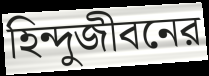
হিন্দুজীবনের